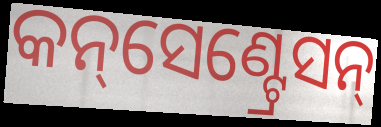
କନ୍‌ସେଣ୍ଟ୍ରେସନ୍